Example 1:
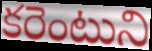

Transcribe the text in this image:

కరెంటుని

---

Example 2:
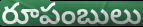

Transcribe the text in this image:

రూపంబులు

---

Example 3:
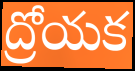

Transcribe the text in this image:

ద్రోయక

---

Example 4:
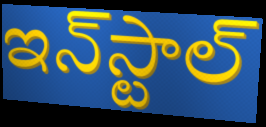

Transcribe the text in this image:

ఇన్‌స్టాల్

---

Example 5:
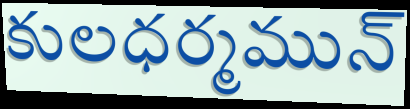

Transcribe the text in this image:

కులధర్మమున్